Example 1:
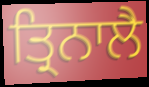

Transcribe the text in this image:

ਤ੍ਰਿਨਾਲੈ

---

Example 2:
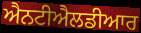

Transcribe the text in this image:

ਐਨਟੀਐਲਡੀਆਰ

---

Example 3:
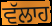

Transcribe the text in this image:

ਵੱਲਾਹ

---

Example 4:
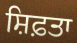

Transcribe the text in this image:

ਸ਼ਿਫ਼ਤਾ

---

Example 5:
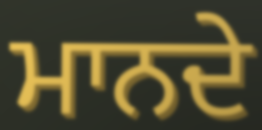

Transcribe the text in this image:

ਮਾਨਦੇ